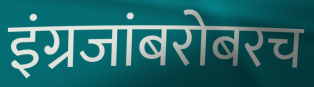
इंग्रजांबरोबरच